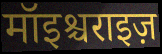
मॉइश्चराइज़